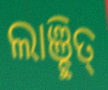
ଲାଞ୍ଛିତ୍